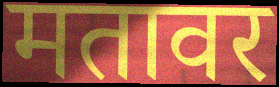
मतावर